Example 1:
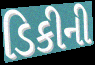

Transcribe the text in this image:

ડિકીની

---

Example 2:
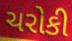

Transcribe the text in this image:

ચરોકી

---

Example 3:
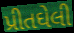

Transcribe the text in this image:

પ્રીતઘેલી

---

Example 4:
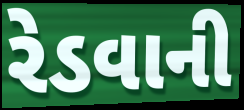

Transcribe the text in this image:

રેડવાની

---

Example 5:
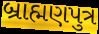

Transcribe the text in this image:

બ્રાહ્મણપુત્ર